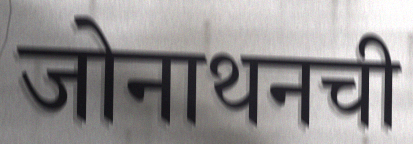
जोनाथनची